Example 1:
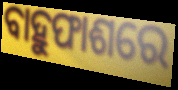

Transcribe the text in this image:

ବାହୁଫାଶରେ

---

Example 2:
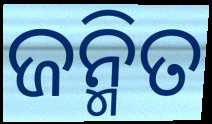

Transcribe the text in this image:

ଜନ୍ମିତ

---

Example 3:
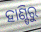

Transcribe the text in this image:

ହାଣ୍ଡିରୁ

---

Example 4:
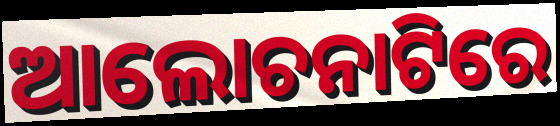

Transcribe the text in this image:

ଆଲୋଚନାଟିରେ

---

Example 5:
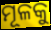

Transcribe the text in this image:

ମୂଳକୁ